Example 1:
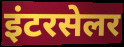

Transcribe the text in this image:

इंटरसेलर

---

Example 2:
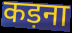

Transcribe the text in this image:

कड़ना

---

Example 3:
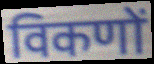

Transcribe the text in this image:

विकणों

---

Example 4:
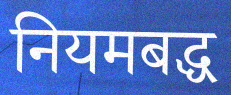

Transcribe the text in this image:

नियमबद्ध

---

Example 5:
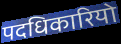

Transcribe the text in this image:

पदधिकारियो